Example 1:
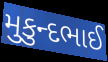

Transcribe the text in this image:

મુકુન્દભાઈ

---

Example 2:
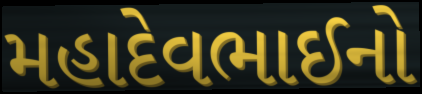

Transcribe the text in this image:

મહાદેવભાઈનો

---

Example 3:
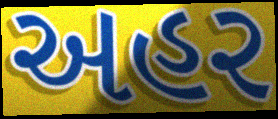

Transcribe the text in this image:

અહર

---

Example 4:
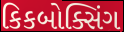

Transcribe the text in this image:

કિકબોક્સિંગ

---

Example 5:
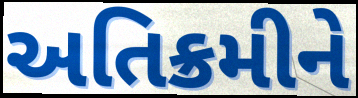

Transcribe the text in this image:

અતિક્રમીને